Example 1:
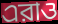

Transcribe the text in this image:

এরাও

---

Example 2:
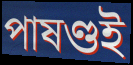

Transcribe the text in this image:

পাষণ্ডই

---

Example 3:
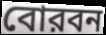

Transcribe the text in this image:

বোরবন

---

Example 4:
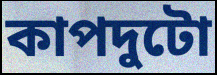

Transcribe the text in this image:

কাপদুটো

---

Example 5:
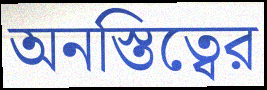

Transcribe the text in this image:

অনস্তিত্বের